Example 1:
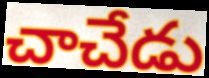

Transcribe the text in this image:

చాచేడు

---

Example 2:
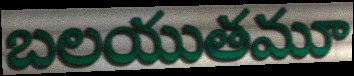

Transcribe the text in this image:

బలయుతమూ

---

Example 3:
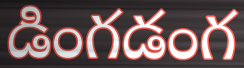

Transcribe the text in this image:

డింగడంగ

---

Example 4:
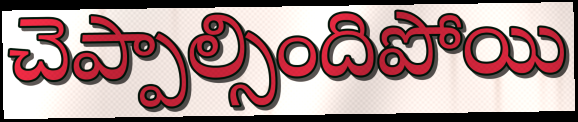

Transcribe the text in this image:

చెప్పాల్సిందిపోయి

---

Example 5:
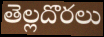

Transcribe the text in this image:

తెల్లదొరలు